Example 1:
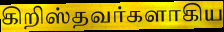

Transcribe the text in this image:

கிறிஸ்தவர்களாகிய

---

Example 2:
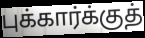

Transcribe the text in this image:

புக்கார்க்குத்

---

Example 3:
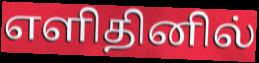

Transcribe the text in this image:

எளிதினில்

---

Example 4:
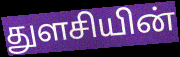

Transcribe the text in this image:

துளசியின்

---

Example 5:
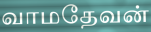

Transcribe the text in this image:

வாமதேவன்